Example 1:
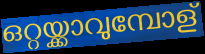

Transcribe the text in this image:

ഒറ്റയ്ക്കാവുമ്പോള്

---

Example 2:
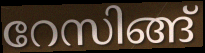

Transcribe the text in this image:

റേസിങ്ങ്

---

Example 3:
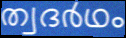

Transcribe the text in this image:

ത്വദർഥം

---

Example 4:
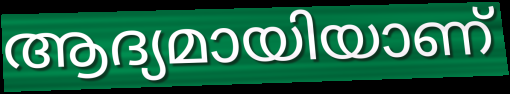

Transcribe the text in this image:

ആദ്യമായിയാണ്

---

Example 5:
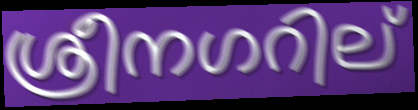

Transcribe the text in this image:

ശ്രീനഗറില്